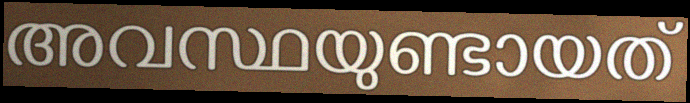
അവസ്ഥയുണ്ടായത്